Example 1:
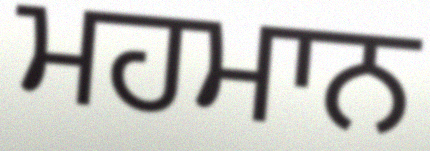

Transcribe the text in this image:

ਮਹਮਾਨ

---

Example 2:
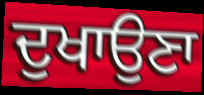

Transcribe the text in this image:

ਦੁਖਾਉਣਾ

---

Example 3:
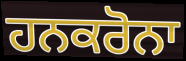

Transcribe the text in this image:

ਹਨਕਰੋਨਾ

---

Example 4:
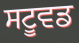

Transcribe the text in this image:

ਸਟੂਵਡ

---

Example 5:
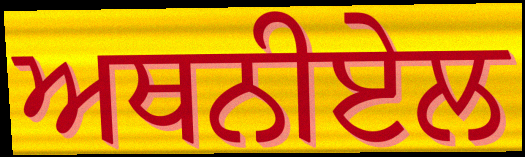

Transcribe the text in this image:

ਅਥਨੀਏਲ